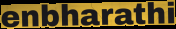
enbharathi